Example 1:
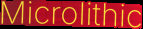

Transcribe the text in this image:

Microlithic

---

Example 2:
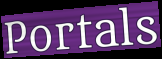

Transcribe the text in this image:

Portals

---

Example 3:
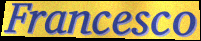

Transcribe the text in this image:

Francesco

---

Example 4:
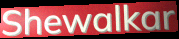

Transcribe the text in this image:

Shewalkar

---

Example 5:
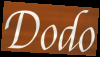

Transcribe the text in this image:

Dodo